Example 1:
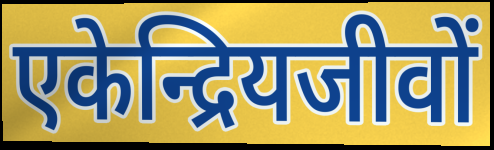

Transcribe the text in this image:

एकेन्द्रियजीवों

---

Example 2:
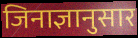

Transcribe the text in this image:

जिनाज्ञानुसार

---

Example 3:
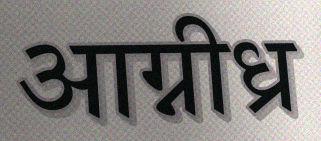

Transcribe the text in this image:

आग्नीध्र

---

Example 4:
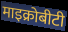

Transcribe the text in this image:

माइक्रोबीटी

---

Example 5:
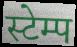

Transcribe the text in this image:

स्टेम्प